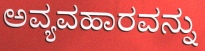
ಅವ್ಯವಹಾರವನ್ನು